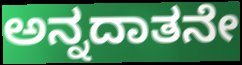
ಅನ್ನದಾತನೇ